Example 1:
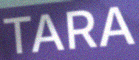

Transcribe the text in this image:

TARA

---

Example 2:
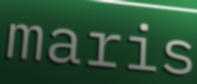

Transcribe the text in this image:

maris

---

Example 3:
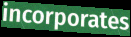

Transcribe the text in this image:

incorporates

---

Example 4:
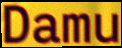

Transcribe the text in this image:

Damu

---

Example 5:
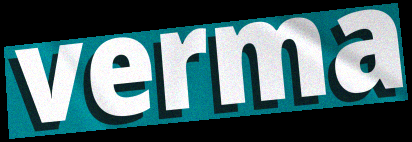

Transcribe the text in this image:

verma